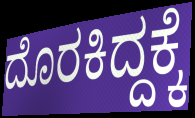
ದೊರಕಿದ್ದಕ್ಕೆ